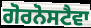
ਗੋਰਨੋਸਟੈਵਾ